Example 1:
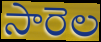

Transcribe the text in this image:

సారెల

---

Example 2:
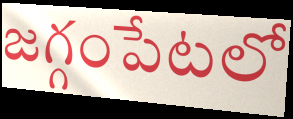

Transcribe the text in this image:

జగ్గంపేటలో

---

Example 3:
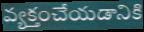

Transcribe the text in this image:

వ్యక్తంచేయడానికి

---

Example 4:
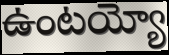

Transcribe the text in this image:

ఉంటయ్యో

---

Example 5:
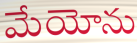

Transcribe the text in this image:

మేయోను